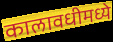
कालावधीमध्ये